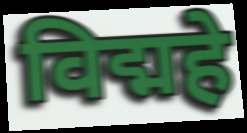
विद्महे